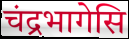
चंद्रभागेसि